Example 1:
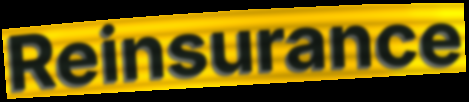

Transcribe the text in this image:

Reinsurance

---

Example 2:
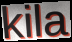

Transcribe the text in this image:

kila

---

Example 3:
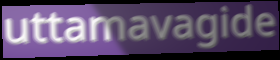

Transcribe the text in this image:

uttamavagide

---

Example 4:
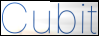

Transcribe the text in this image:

Cubit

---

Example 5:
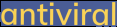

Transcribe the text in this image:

antiviral